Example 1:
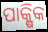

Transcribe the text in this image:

ପାକ୍ଷିକ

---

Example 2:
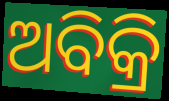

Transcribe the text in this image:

ଅବିକ୍ରି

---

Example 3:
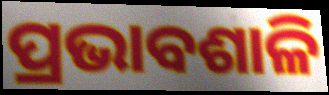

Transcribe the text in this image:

ପ୍ରଭାବଶାଳି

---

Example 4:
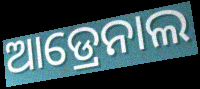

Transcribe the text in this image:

ଆଡ୍ରେନାଲ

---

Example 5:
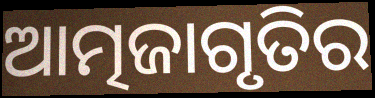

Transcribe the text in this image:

ଆତ୍ମଜାଗୃତିର